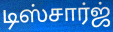
டிஸ்சார்ஜ்